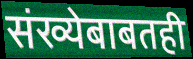
संख्येबाबतही